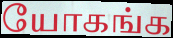
யோகங்க